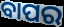
ବାପର